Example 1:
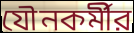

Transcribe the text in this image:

যৌনকর্মীর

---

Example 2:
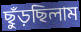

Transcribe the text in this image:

ছুঁড়ছিলাম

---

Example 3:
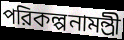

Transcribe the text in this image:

পরিকল্পনামন্ত্রী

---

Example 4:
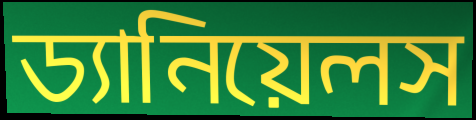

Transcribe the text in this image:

ড্যানিয়েলস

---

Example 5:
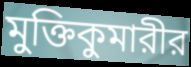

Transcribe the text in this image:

মুক্তিকুমারীর